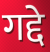
गद्दे